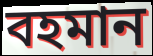
বহমান